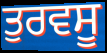
ਤੁਰਵਸੂ